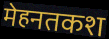
मेहनतकश